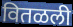
वितळली